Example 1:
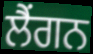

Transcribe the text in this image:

ਲੈਂਗਨ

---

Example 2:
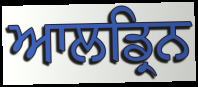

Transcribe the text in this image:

ਆਲਡ੍ਰਿਨ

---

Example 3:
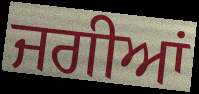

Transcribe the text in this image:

ਜਗੀਆਂ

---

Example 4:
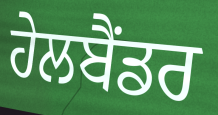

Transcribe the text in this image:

ਹੇਲਬੈਂਡਰ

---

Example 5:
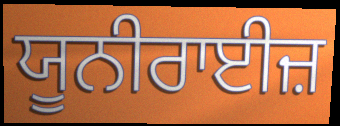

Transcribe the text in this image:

ਯੂਨੀਰਾਈਜ਼